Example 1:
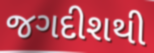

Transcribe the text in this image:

જગદીશથી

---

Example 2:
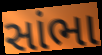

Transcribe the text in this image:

સાંભા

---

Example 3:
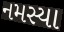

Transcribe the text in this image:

નમસ્યા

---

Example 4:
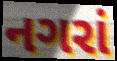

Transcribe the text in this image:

નગરાં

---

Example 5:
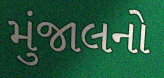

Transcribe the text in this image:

મુંજાલનો